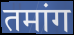
तमांग